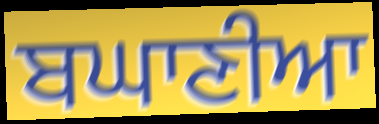
ਬਘਾਣੀਆ